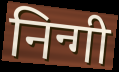
निन्गी